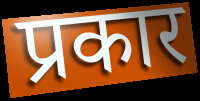
प्रकार